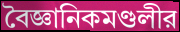
বৈজ্ঞানিকমণ্ডলীর